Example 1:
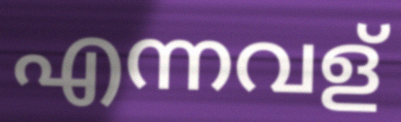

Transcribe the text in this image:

എന്നവള്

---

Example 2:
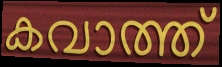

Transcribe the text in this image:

കവാത്ത്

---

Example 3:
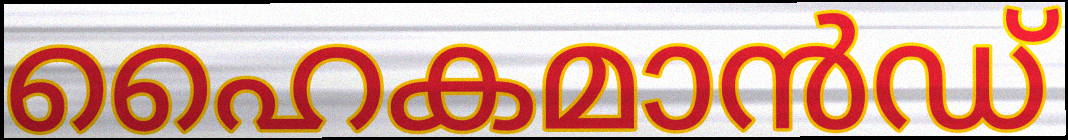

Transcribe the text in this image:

ഹൈകമാൻഡ്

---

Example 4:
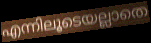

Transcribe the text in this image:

എന്നിലൂടെയല്ലാതെ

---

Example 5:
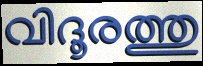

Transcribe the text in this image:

വിദൂരത്തു